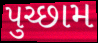
પુચ્છામ